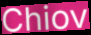
Chiov